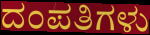
ದಂಪತಿಗಳು